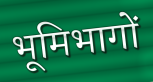
भूमिभागों